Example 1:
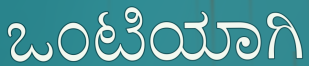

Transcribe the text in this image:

ಒಂಟಿಯಾಗಿ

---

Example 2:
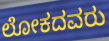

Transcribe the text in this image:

ಲೋಕದವರು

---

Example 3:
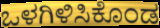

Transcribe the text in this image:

ಒಳಗಿಳಿಸಿಕೊಂಡ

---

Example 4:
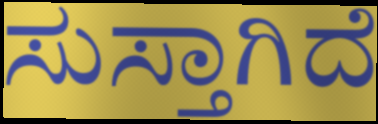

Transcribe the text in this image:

ಸುಸ್ತಾಗಿದೆ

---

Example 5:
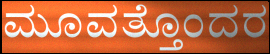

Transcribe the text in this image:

ಮೂವತ್ತೊಂದರ